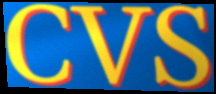
CVS